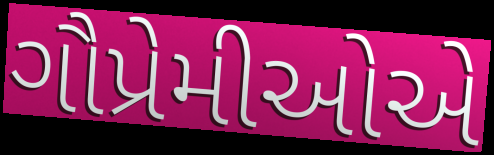
ગૌપ્રેમીઓએ